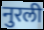
नुरली